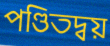
পণ্ডিতদ্বয়